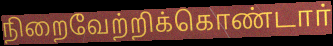
நிறைவேற்றிக்கொண்டார்